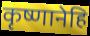
कृष्णानेहि